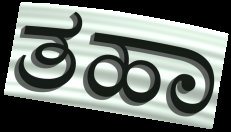
ತಹಾ